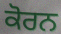
ਕੋਰਨ